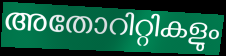
അതോറിറ്റികളും